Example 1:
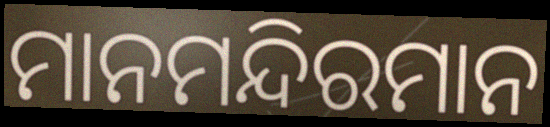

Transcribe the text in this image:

ମାନମନ୍ଦିରମାନ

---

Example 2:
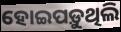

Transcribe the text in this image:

ହୋଇପଡ଼ୁଥିଲି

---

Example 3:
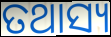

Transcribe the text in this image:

ତଥାସ୍ୟ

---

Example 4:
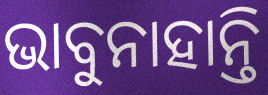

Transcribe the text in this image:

ଭାବୁନାହାନ୍ତି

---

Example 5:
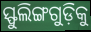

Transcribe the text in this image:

ସ୍ଫୁଲିଙ୍ଗଗୁଡ଼ିକୁ